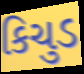
કિચુડ